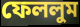
ফেললুম